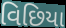
વિછિયા